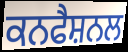
ਕਨਫੈਸ਼ਨਲ